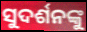
ସୁଦର୍ଶନଙ୍କୁ